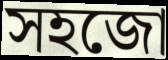
সহজো